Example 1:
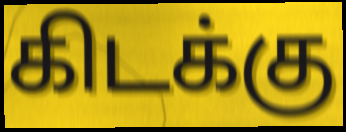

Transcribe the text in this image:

கிடக்கு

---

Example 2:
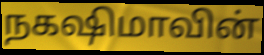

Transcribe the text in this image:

நகஷிமாவின்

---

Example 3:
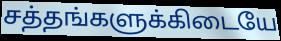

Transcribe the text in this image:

சத்தங்களுக்கிடையே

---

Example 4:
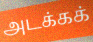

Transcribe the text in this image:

அடக்கக்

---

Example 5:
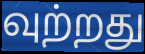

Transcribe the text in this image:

வுற்றது